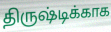
திருஷ்டிக்காக